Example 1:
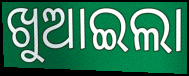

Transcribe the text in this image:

ଖୁଆଇଲା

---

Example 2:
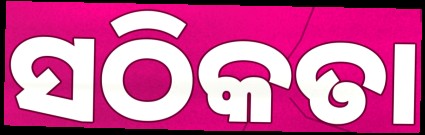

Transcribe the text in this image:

ସଠିକତା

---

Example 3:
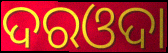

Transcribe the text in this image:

ଦରଓଦା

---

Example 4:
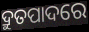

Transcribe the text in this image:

ଦ୍ରୁତପାଦରେ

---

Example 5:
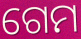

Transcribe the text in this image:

ଗେମ